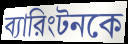
ব্যারিংটনকে